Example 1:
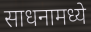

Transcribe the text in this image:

साधनामध्ये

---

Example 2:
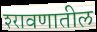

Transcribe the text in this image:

श्रावणातील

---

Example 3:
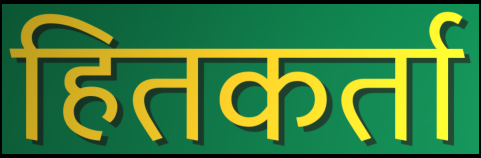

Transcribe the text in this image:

हितकर्ता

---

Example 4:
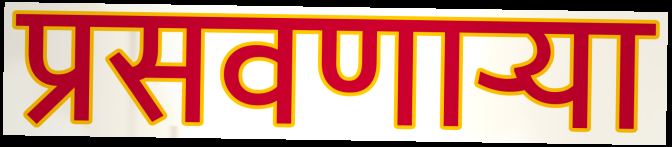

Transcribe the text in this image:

प्रसवणाऱ्या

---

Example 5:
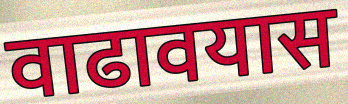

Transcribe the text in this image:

वाढावयास